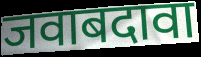
जवाबदावा